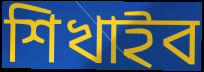
শিখাইব